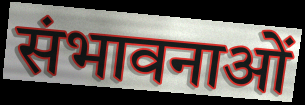
संभावनाओं